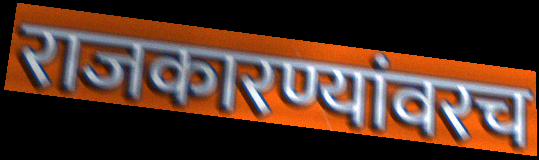
राजकारण्यांवरच